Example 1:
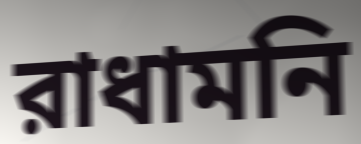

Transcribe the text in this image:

রাধামনি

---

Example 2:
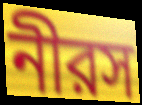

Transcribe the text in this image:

নীরস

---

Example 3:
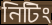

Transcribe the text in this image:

নিটিং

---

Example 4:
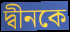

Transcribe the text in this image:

দ্বীনকে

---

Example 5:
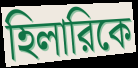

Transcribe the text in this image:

হিলারিকে